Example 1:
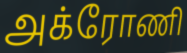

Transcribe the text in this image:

அக்ரோணி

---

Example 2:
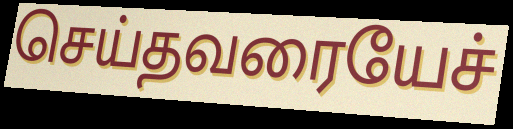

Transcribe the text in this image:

செய்தவரையேச்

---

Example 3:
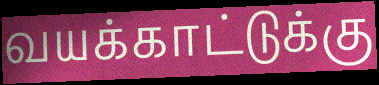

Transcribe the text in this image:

வயக்காட்டுக்கு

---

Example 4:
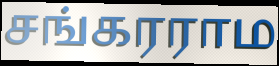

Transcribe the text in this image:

சங்கரராம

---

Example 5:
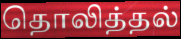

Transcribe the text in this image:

தொலித்தல்